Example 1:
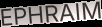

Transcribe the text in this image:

EPHRAIM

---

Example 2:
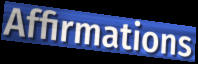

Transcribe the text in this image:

Affirmations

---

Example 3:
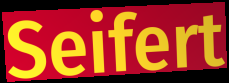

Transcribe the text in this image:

Seifert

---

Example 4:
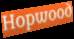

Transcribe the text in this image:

Hopwood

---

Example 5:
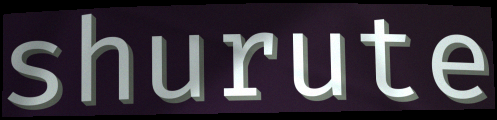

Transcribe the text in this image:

shurute